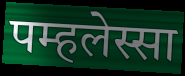
पम्हलेस्सा